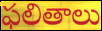
ఫలితాలు